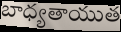
బాధ్యతాయుత